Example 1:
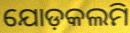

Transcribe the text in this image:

ଯୋଡ଼କଲମି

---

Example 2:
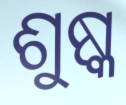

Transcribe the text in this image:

ଶୁଷ୍କ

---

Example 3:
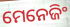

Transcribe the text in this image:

ମେନେଜିଂ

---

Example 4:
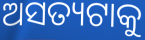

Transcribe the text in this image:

ଅସତ୍ୟଟାକୁ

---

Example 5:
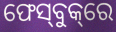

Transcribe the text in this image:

ଫେସ୍‌ବୁକ୍‌ରେ